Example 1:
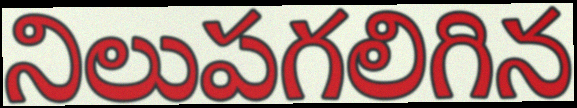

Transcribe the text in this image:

నిలుపగలిగిన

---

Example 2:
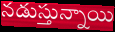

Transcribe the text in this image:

నడుస్తున్నాయి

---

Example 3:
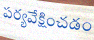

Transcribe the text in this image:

పర్యవేక్షించడం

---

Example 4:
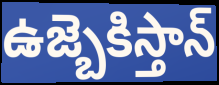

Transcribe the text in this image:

ఉజ్బెకిస్తాన్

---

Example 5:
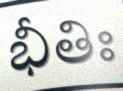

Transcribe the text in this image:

భీతిః